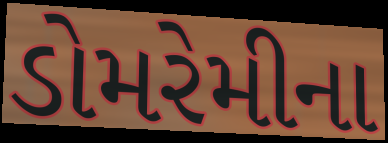
ડોમરેમીના